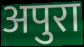
अपुरा